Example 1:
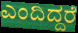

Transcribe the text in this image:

ಎಂದಿದ್ದರೆ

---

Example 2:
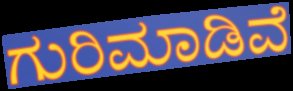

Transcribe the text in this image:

ಗುರಿಮಾಡಿವೆ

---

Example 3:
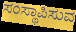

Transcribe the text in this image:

ಸಂಸ್ಥಾಪಿಸುವ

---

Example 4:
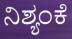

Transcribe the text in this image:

ನಿಶ್ಯಂಕೆ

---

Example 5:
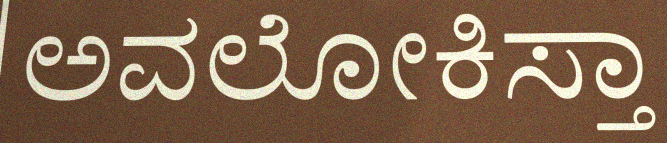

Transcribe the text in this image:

ಅವಲೋಕಿಸ್ತಾ